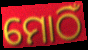
ମୋଠିଁ